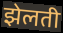
झेलती